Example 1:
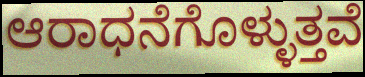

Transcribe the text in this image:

ಆರಾಧನೆಗೊಳ್ಳುತ್ತವೆ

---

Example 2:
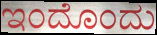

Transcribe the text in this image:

ಇಂದೊಂದು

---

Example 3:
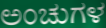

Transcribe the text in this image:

ಅಂಚುಗಳ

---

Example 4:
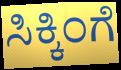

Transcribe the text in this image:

ಸಿಕ್ಕಿಂಗೆ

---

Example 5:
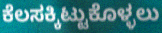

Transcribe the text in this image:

ಕೆಲಸಕ್ಕಿಟ್ಟುಕೊಳ್ಳಲು